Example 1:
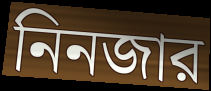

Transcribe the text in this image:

নিনজার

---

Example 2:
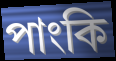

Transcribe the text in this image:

পাংকি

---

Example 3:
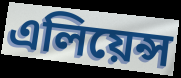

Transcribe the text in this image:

এলিয়েন্স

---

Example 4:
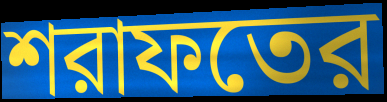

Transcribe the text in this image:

শরাফতের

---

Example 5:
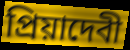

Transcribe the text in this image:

প্রিয়াদেবী